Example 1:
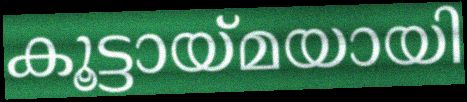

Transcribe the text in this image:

കൂട്ടായ്മയായി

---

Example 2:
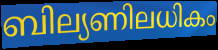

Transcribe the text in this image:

ബില്യണിലധികം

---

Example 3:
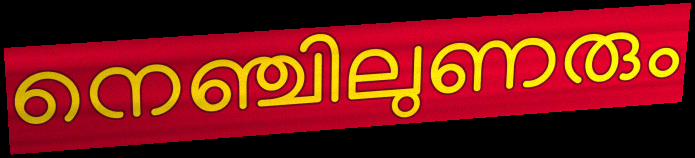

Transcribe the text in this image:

നെഞ്ചിലുണരും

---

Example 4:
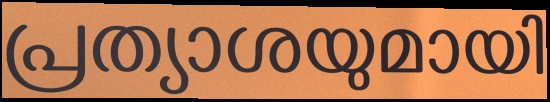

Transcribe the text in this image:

പ്രത്യാശയുമായി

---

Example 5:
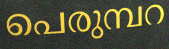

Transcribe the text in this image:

പെരുമ്പറ